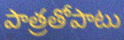
పాత్రతోపాటు